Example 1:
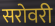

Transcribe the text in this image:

सरोवरी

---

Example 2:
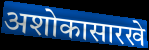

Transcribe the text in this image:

अशोकासारखे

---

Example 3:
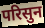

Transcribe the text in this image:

परिसुन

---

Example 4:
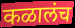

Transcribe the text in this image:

कळालंच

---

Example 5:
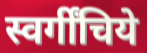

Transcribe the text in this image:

स्वर्गींचिये